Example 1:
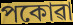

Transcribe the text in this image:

পকোৱা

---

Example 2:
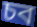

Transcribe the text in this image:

চব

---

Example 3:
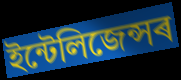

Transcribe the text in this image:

ইন্টেলিজেন্সৰ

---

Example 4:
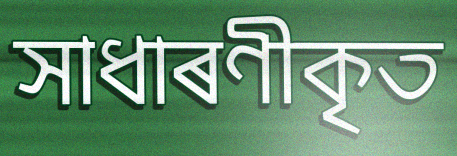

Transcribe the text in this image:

সাধাৰণীকৃত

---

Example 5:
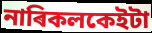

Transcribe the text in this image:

নাৰিকলকেইটা